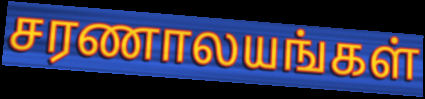
சரணாலயங்கள்